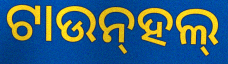
ଟାଉନ୍‌ହଲ୍